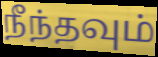
நீந்தவும்